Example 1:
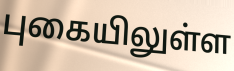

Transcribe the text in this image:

புகையிலுள்ள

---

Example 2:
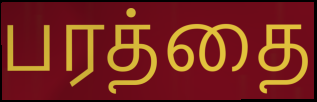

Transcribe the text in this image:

பரத்தை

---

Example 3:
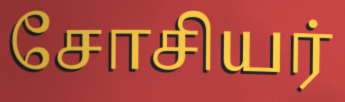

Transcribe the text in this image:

சோசியர்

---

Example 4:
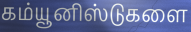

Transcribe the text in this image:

கம்யூனிஸ்டுகளை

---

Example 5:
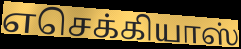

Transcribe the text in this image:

எசெக்கியாஸ்